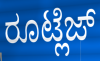
ರೂಟ್ಲೆಜ್